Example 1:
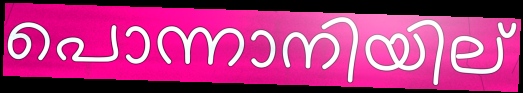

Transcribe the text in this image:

പൊന്നാനിയില്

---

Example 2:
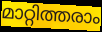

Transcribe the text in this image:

മാറ്റിത്തരാം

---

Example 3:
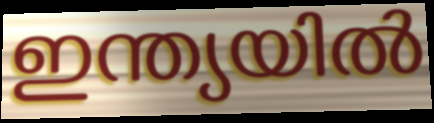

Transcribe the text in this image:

ഇന്ത്യയിൽ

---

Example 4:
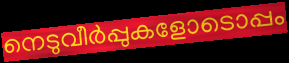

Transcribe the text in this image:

നെടുവീർപ്പുകളോടൊപ്പം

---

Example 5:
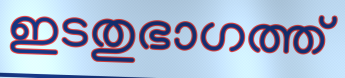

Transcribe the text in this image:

ഇടതുഭാഗത്ത്